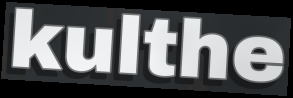
kulthe